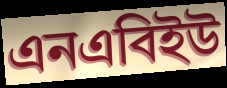
এনএবিইউ